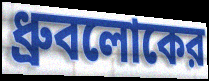
ধ্রুবলোকের